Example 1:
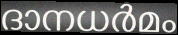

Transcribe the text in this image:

ദാനധർമം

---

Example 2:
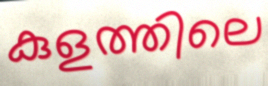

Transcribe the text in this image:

കുളത്തിലെ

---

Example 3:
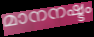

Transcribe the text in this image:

മാനനഷ്ടം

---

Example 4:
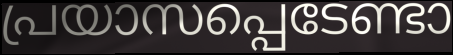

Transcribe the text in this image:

പ്രയാസപ്പെടേണ്ടാ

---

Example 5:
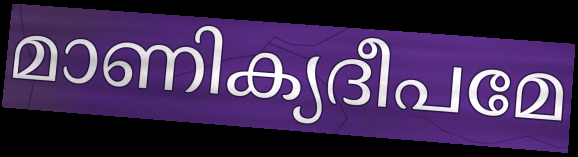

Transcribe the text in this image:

മാണിക്യദീപമേ